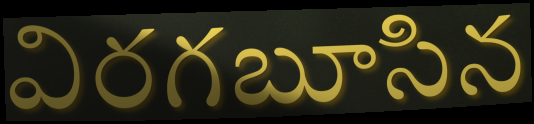
విరగబూసిన